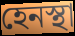
হেনস্থা